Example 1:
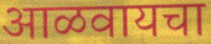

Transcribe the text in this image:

आळवायचा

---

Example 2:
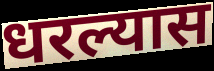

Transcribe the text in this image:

धरल्यास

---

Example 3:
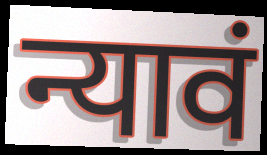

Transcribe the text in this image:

न्यावं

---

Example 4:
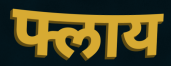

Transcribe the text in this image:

फ्लाय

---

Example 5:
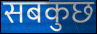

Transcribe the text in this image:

सबकुछ